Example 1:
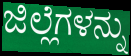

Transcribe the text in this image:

ಜಿಲ್ಲೆಗಳನ್ನು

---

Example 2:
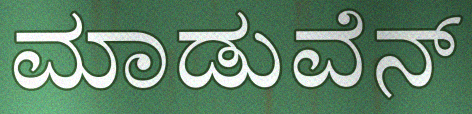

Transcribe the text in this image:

ಮಾಡುವೆನ್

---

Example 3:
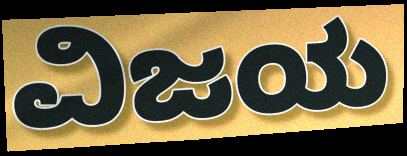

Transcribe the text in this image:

ವಿಜಯ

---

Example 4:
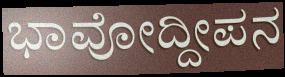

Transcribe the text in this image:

ಭಾವೋದ್ದೀಪನ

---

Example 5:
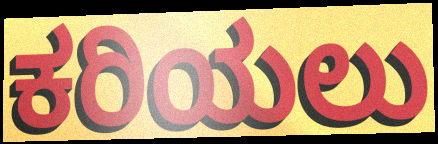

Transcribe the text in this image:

ಕರಿಯಲು